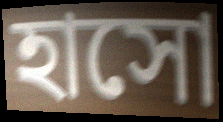
হাসো